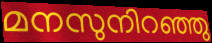
മനസുനിറഞ്ഞു